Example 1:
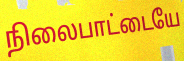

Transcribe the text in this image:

நிலைபாட்டையே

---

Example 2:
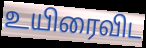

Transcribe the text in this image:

உயிரைவிட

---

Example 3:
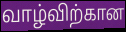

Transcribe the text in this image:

வாழ்விற்கான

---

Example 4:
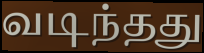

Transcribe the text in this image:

வடிந்தது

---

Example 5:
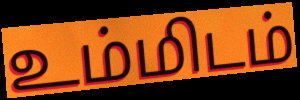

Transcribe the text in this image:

உம்மிடம்